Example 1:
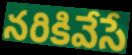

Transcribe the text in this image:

నరికివేసే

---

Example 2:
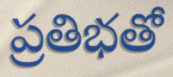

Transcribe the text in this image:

ప్రతిభతో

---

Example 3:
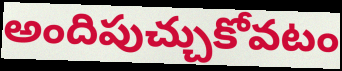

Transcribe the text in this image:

అందిపుచ్చుకోవటం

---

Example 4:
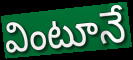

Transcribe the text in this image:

వింటూనే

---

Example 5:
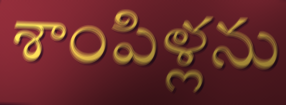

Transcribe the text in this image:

శాంపిళ్లను